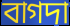
বাগদা